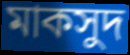
মাকসুদ